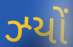
ઝ્યોં